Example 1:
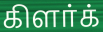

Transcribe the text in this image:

கிளர்க்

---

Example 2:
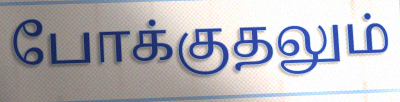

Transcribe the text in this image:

போக்குதலும்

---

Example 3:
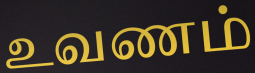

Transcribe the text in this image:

உவணம்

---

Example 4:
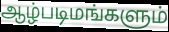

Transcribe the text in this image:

ஆழ்படிமங்களும்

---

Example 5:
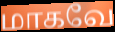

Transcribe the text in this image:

மாகவே